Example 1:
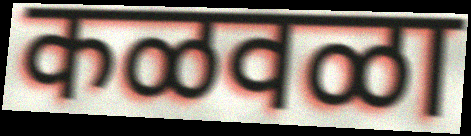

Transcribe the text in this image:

कळवळा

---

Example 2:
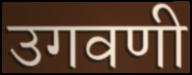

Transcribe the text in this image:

उगवणी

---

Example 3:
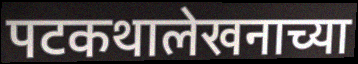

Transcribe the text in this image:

पटकथालेखनाच्या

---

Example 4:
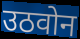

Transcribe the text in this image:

उठवोन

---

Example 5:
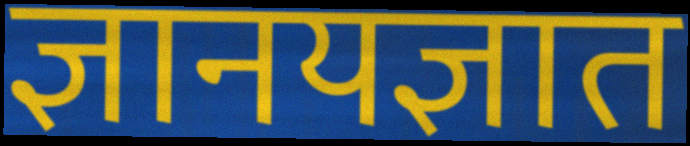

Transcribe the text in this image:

ज्ञानयज्ञात